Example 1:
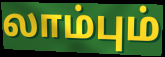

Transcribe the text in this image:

லாம்பும்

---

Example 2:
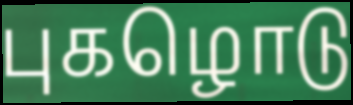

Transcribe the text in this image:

புகழொடு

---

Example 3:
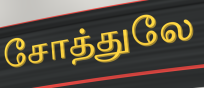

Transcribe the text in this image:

சோத்துலே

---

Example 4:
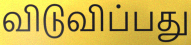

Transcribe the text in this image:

விடுவிப்பது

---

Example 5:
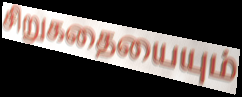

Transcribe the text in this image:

சிறுகதையையும்